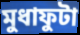
মুধাফুটা